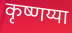
कृष्णय्या